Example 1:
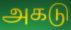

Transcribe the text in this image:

அகடு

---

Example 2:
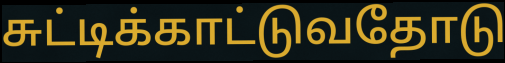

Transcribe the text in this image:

சுட்டிக்காட்டுவதோடு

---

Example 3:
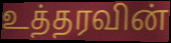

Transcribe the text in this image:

உத்தரவின்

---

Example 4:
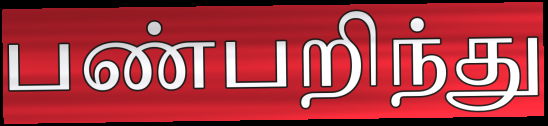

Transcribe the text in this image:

பண்பறிந்து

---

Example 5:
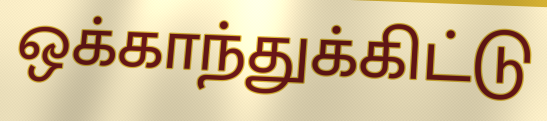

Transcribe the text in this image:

ஒக்காந்துக்கிட்டு